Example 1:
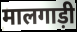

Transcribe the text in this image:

मालगाड़ी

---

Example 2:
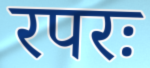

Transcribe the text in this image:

रपरः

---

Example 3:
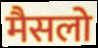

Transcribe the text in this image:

मैसलो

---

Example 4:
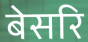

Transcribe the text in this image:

बेसरि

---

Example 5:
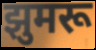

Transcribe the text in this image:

झुमरू